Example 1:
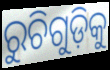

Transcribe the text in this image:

ରୁଚିଗୁଡ଼ିକୁ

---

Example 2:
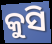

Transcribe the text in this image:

କୁସି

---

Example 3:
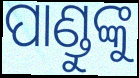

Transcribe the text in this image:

ପାଣ୍ଡୁଙ୍କୁ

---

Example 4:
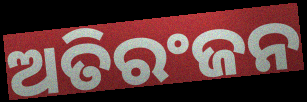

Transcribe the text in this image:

ଅତିରଂଜନ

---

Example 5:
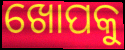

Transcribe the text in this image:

ଖୋପକୁ